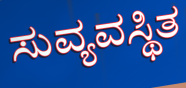
ಸುವ್ಯವಸ್ಥಿತ